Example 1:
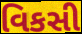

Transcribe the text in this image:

વિકસી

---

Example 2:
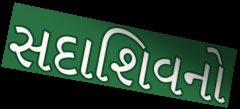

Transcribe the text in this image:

સદાશિવનો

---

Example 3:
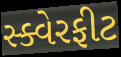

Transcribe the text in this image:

સ્ક્વેરફીટ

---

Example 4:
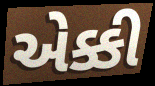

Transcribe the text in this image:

એક્કી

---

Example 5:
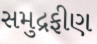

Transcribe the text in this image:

સમુદ્રફીણ